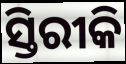
ସ୍ତିରୀକି